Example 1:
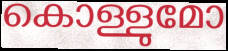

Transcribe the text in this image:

കൊള്ളുമോ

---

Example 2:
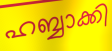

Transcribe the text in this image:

ഹബ്ബാക്കി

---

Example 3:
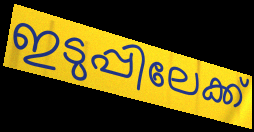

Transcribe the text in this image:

ഇടുപ്പിലേക്ക്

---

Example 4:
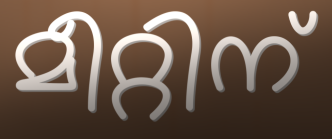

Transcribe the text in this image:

മീറ്റിന്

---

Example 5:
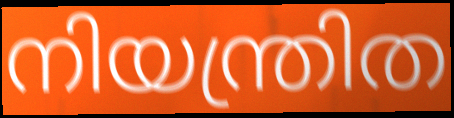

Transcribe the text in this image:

നിയന്ത്രിത